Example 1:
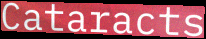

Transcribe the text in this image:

Cataracts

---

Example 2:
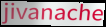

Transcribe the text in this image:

jivanache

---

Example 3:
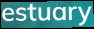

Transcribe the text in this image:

estuary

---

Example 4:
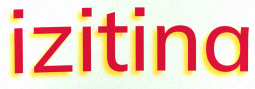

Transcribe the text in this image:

izitina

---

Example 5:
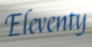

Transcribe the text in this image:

Eleventy